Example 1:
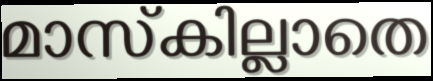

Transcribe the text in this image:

മാസ്‌കില്ലാതെ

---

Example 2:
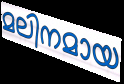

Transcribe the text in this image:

മലിനമായ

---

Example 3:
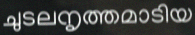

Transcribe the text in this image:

ചുടലനൃത്തമാടിയ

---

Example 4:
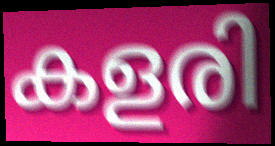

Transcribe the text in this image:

കളരി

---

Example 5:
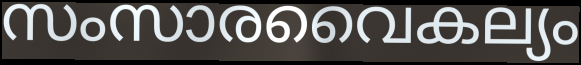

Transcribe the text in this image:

സംസാരവൈകല്യം